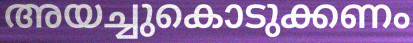
അയച്ചുകൊടുക്കണം